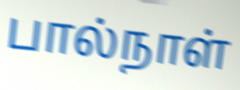
பால்நாள்